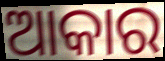
ଆକାର